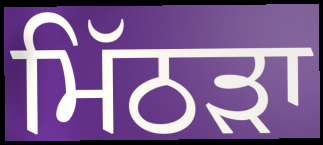
ਮਿੱਠੜਾ